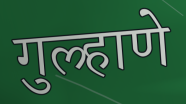
गुल्हाणे